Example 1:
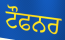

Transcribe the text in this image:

ਟੌਫਨਰ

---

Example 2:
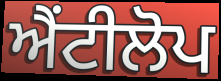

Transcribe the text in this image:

ਐਂਟੀਲੋਪ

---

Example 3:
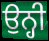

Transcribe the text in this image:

ਉਨ੍ਹੀ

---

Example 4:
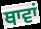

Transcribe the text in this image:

ਥਾਵਾਂ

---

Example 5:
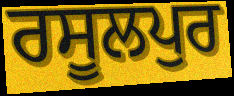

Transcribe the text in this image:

ਰਸੂਲਪੁਰ